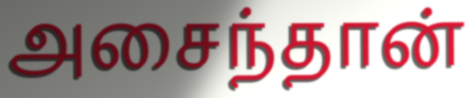
அசைந்தான்